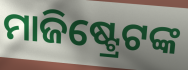
ମାଜିଷ୍ଟ୍ରେଟଙ୍କ